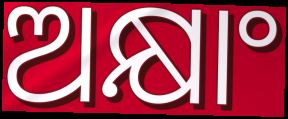
ଅକ୍ଷାଂ